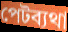
পেটব্যথা